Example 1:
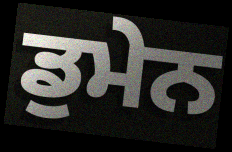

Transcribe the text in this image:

ਡੁਮੇਨ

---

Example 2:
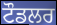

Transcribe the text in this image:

ਟੌਡਲਰ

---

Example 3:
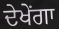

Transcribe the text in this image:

ਦੇਖੇਂਗਾ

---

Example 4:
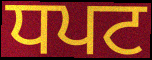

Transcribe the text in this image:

ਧਪਟ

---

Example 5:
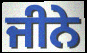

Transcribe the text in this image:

ਜੀਨੇ